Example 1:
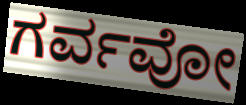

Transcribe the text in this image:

ಗರ್ವವೋ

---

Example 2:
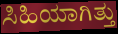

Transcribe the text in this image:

ಸಿಹಿಯಾಗಿತ್ತು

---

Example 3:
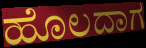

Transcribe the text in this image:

ಹೊಲದಾಗ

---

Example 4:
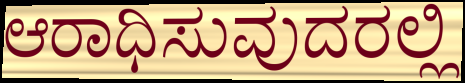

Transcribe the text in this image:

ಆರಾಧಿಸುವುದರಲ್ಲಿ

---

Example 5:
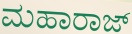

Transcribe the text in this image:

ಮಹಾರಾಜ್